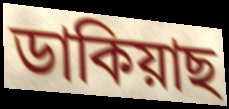
ডাকিয়াছ